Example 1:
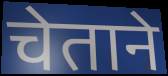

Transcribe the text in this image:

चेताने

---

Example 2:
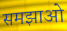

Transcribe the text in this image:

समझाओ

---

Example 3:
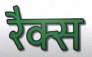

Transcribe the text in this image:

रैक्स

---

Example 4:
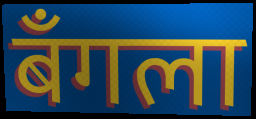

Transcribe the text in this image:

बँगला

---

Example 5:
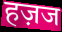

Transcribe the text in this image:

हज़ज